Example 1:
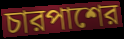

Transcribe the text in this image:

চারপাশের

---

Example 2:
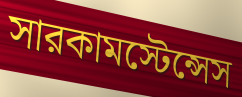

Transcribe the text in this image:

সারকামস্টেন্সেস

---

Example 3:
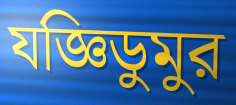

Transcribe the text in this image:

যজ্ঞিডুমুর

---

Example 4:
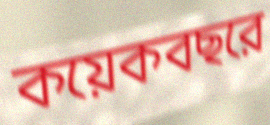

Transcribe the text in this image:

কয়েকবছরে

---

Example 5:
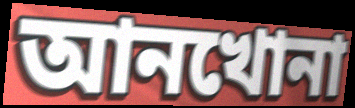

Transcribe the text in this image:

আনখোনা